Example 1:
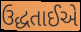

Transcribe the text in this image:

ઉદ્ધતાઈએ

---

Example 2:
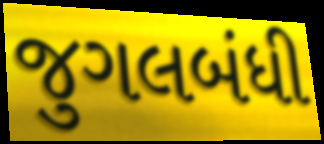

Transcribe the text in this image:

જુગલબંધી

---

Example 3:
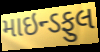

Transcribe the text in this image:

માઇન્ડફુલ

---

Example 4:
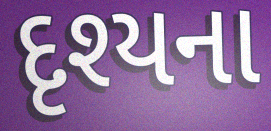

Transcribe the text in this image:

દૃશ્યના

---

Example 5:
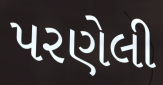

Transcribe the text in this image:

પરણેલી